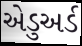
એડુઅર્ડ